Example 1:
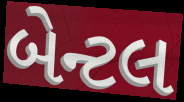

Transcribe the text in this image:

બેન્ટલ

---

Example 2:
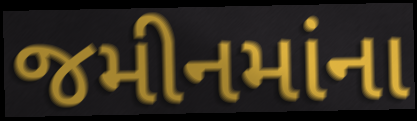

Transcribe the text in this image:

જમીનમાંના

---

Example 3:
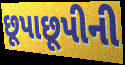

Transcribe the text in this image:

છૂપાછૂપીની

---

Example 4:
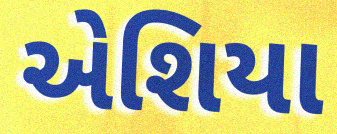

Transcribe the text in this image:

એશિયા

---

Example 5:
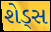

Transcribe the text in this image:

શેડ્સ